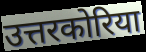
उत्तरकोरिया